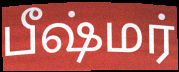
பீஷ்மர்